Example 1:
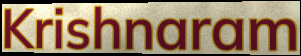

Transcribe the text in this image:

Krishnaram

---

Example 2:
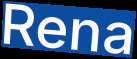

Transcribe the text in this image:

Rena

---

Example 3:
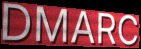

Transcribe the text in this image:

DMARC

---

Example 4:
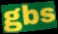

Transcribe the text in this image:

gbs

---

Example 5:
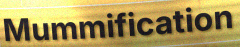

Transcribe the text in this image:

Mummification